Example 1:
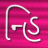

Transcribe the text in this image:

ન્હિ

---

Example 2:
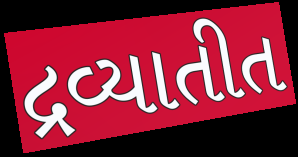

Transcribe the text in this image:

દ્રવ્યાતીત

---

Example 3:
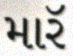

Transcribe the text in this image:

મારૅ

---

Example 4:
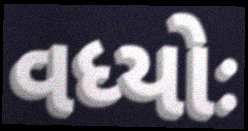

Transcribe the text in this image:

વધ્યોઃ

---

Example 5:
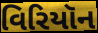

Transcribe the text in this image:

વિરિયૉન